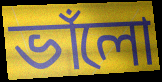
ভাঁলো